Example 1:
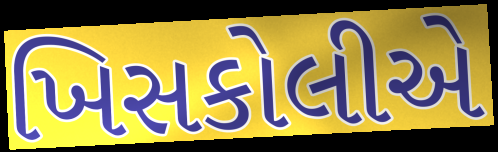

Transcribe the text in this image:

ખિસકોલીએ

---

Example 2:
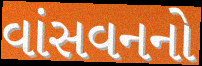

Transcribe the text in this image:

વાંસવનનો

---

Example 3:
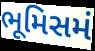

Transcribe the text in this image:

ભૂમિસમં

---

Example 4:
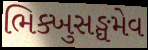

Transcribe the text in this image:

ભિક્ખુસઙ્ઘમેવ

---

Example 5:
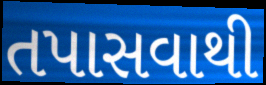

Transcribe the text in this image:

તપાસવાથી